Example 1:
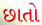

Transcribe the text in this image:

છાતો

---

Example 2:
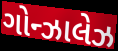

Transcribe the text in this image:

ગોન્ઝાલેઝ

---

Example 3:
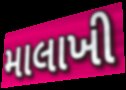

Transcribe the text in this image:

માલાખી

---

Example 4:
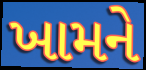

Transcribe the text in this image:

ખામને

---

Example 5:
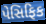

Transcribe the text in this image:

પેસિફિક